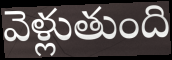
వెళ్లుతుంది